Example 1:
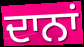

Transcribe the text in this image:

ਦਾਨਾਂ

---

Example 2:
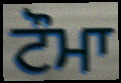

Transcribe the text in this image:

ਟੌਮਾ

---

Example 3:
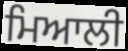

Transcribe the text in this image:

ਮਿਆਲੀ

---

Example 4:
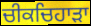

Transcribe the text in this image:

ਚੀਕਚਿਹਾੜਾ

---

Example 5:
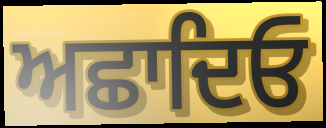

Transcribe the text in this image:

ਅਛਾਦਿਓ